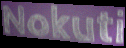
Nokuti